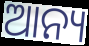
ଆନ୍ୟ